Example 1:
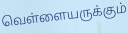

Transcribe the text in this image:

வெள்ளையருக்கும்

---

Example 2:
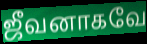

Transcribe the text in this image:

ஜீவனாகவே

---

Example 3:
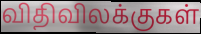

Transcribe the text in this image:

விதிவிலக்குகள்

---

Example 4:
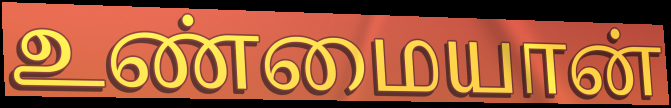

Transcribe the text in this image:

உண்மையான்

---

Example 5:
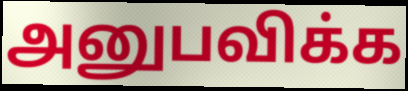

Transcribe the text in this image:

அனுபவிக்க